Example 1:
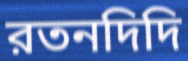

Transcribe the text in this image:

রতনদিদি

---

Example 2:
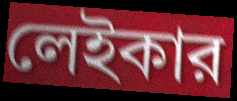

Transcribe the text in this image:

লেইকার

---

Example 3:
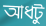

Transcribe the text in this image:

আধটু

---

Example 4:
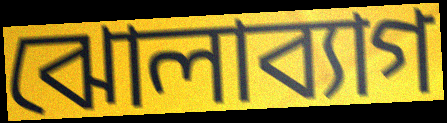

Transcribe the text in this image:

ঝোলাব্যাগ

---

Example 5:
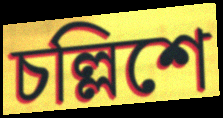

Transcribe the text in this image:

চল্লিশে